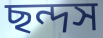
ছন্দস